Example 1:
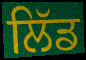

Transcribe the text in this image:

ਲਿੱਡ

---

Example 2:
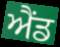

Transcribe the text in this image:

ਐੰਡ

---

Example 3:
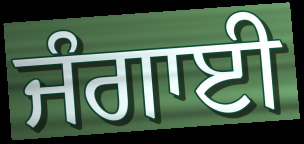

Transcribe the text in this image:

ਜੰਗਾਈ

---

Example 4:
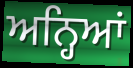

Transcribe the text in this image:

ਅਨ੍ਹਿਆਂ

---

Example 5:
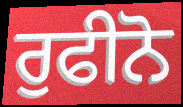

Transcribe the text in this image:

ਰੁਫੀਨੋ